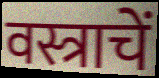
वस्त्राचें